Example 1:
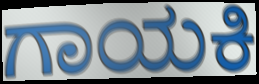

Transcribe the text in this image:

ಗಾಯಕಿ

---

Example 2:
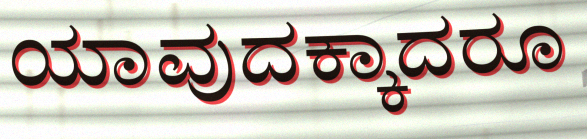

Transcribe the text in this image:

ಯಾವುದಕ್ಕಾದರೂ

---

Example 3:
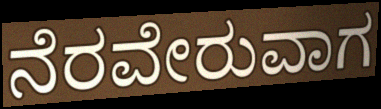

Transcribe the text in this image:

ನೆರವೇರುವಾಗ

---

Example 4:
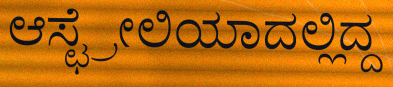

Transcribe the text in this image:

ಆಸ್ಟ್ರೇಲಿಯಾದಲ್ಲಿದ್ದ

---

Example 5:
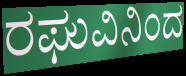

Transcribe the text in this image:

ರಘುವಿನಿಂದ